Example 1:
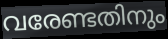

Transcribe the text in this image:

വരേണ്ടതിനും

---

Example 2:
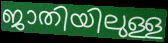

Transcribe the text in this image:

ജാതിയിലുള്ള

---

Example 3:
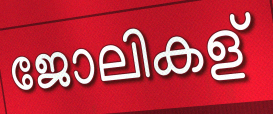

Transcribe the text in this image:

ജോലികള്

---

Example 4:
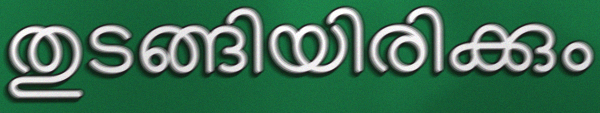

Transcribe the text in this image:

തുടങ്ങിയിരിക്കും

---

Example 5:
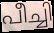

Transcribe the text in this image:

പീച്ചി